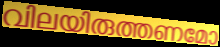
വിലയിരുത്തണമോ